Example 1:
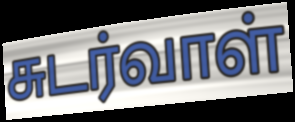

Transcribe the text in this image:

சுடர்வாள்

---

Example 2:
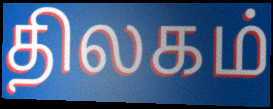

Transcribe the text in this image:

திலகம்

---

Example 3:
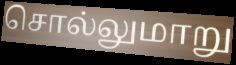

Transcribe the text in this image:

சொல்லுமாறு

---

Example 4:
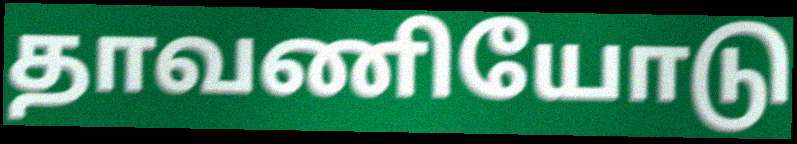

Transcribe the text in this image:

தாவணியோடு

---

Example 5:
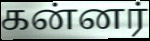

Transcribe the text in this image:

கன்னர்